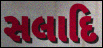
સલાદિ